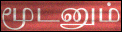
மூடனும்